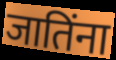
जातिंना